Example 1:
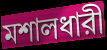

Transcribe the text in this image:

মশালধারী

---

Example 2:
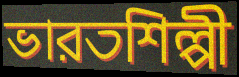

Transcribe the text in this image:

ভারতশিল্পী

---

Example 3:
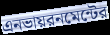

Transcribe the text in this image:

এনভায়রনমেন্টের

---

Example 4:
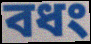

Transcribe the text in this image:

বধং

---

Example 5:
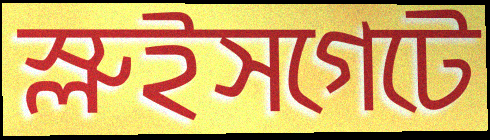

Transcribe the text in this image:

স্লুইসগেটে